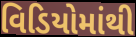
વિડિયોમાંથી